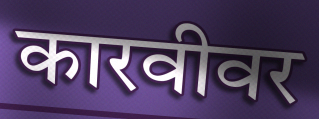
कारवीवर